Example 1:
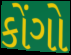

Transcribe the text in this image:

કોંગો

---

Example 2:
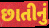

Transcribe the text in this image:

છાતીનું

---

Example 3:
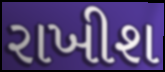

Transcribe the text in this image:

રાખીશ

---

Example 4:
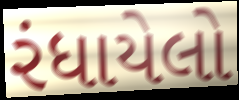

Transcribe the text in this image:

રંધાયેલો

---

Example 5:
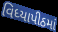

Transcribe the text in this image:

વિધ્યાપીઠમાં